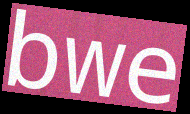
bwe